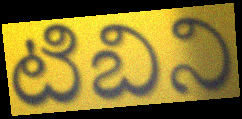
టిబిని